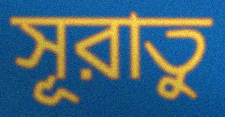
সূরাতু